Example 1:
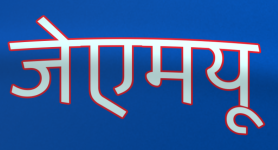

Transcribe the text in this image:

जेएमयू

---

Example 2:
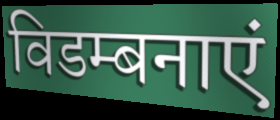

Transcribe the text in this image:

विडम्बनाएं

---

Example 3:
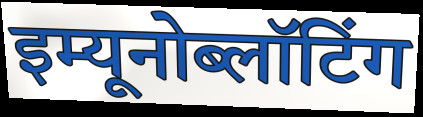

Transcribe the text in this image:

इम्यूनोब्लॉटिंग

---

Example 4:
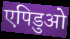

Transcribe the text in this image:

एपिडुओ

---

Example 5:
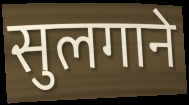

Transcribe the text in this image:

सुलगाने